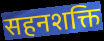
सहनशक्ति